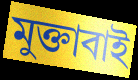
মুক্তাবাই